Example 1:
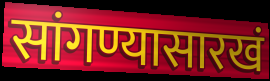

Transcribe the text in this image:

सांगण्यासारखं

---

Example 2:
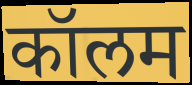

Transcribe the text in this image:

कॉलम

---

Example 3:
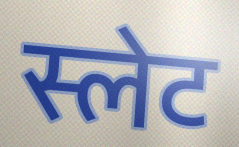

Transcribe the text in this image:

स्लेट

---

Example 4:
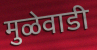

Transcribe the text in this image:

मुळेवाडी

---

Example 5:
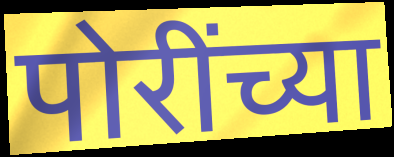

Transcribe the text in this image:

पोरींच्या